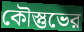
কৌস্তুভের